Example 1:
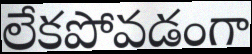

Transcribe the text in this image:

లేకపోవడంగా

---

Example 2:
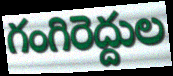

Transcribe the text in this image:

గంగిరెద్దుల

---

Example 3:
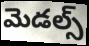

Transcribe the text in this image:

మెడల్స్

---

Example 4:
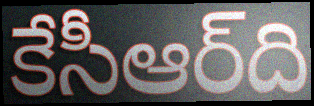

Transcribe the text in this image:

కేసీఆర్‌ది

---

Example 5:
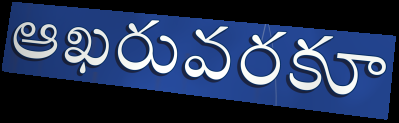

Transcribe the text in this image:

ఆఖరువరకూ